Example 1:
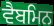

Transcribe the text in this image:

ਵੈਬਮਿਨ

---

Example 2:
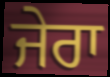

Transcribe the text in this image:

ਜੇਰਾ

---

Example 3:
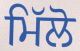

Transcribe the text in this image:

ਮਿੱਲੋ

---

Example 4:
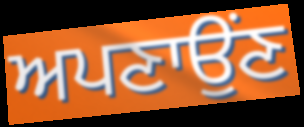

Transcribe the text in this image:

ਅਪਣਾਉਂਣ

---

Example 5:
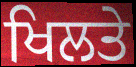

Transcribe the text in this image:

ਖਿਲਤੇ